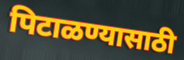
पिटाळण्यासाठी